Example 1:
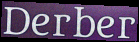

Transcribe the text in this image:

Derber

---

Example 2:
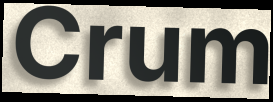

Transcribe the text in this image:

Crum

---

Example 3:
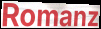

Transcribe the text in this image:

Romanz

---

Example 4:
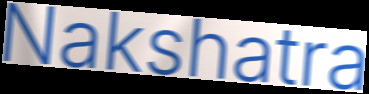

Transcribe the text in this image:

Nakshatra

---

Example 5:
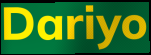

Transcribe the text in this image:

Dariyo